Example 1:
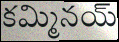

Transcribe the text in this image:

కమ్మినయ్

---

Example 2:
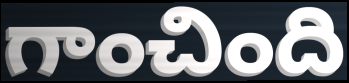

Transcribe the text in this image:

గాంచింది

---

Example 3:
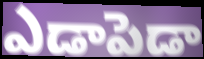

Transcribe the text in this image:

ఎడాపెడా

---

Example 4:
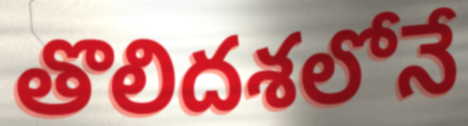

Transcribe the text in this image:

తొలిదశలోనే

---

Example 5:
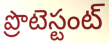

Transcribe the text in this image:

ప్రొటెస్టంట్